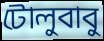
টোলুবাবু